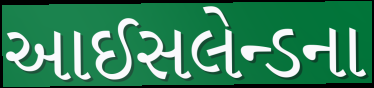
આઈસલેન્ડના